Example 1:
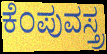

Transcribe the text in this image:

ಕೆಂಪುವಸ್ತ್ರ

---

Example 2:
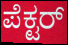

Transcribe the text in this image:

ಪೆಕ್ಟರ್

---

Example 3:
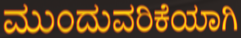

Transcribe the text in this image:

ಮುಂದುವರಿಕೆಯಾಗಿ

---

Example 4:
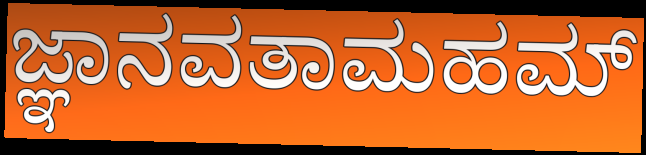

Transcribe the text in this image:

ಜ್ಞಾನವತಾಮಹಮ್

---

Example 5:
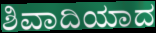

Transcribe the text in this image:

ಶಿವಾದಿಯಾದ